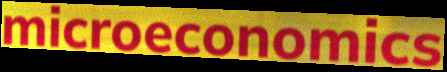
microeconomics